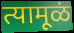
त्यामूळं